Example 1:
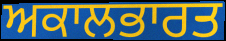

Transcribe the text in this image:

ਅਕਾਲਭਾਰਤ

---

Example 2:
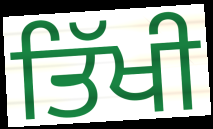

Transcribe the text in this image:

ਤਿੱਖੀ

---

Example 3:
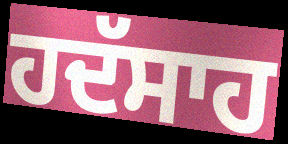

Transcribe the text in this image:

ਹਦੱਸਾਹ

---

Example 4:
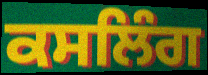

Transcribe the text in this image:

ਕਸਲਿੰਗ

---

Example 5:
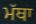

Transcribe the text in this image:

ਮੱਥਾ